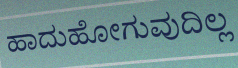
ಹಾದುಹೋಗುವುದಿಲ್ಲ